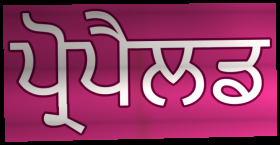
ਪ੍ਰੋਪੈਲਡ